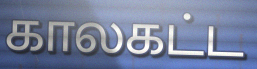
காலகட்ட